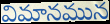
విమానమున